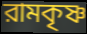
রামকৃষ্ণ